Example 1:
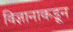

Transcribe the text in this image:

विज्ञानाकडून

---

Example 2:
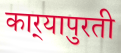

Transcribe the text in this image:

कार्यापुरती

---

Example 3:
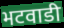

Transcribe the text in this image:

भटवाडी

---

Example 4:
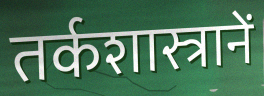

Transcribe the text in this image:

तर्कशास्त्रानें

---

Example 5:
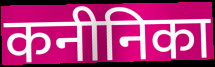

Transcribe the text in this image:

कनीनिका